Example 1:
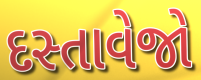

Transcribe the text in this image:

દસ્તાવેજો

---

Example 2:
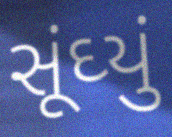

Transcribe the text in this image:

સૂંઘ્યું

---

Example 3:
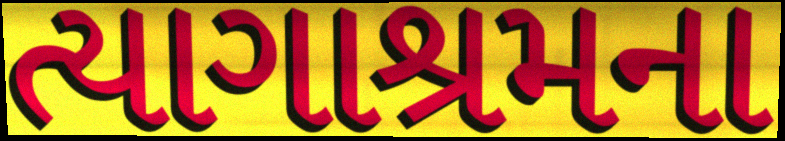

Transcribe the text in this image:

ત્યાગાશ્રમના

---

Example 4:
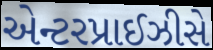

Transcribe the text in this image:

એન્ટરપ્રાઈઝીસે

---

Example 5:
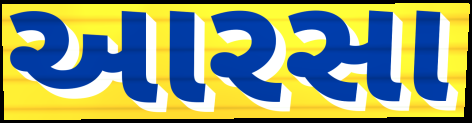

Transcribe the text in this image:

આરસા